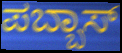
ಪಬ್ಬಾಸ್